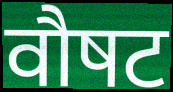
वौषट